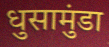
धुसामुंडा